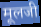
मूलजी